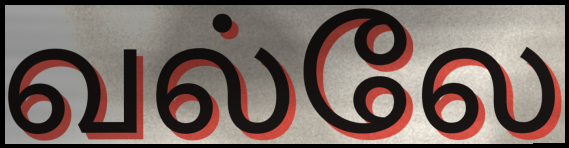
வல்லே